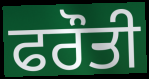
ਫਰੌਤੀ